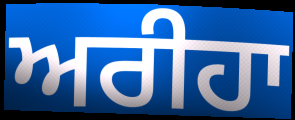
ਅਰੀਹਾ